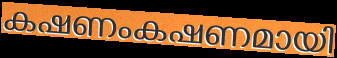
കഷണംകഷണമായി